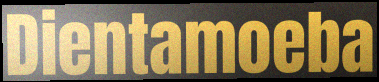
Dientamoeba